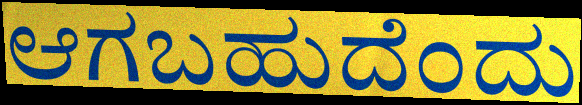
ಆಗಬಹುದೆಂದು